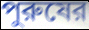
পুরুষের